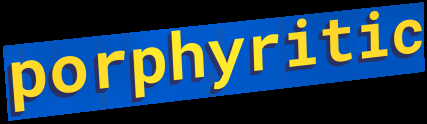
porphyritic